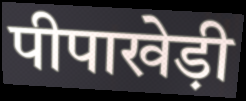
पीपाखेड़ी